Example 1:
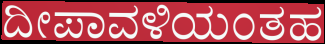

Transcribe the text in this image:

ದೀಪಾವಳಿಯಂತಹ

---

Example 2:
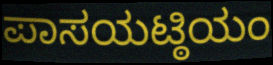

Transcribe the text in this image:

ಪಾಸಯಟ್ಠಿಯಂ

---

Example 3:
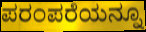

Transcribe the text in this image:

ಪರಂಪರೆಯನ್ನೂ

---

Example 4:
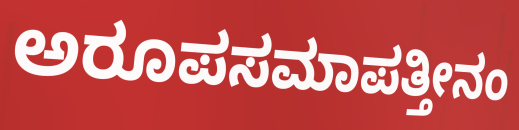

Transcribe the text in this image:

ಅರೂಪಸಮಾಪತ್ತೀನಂ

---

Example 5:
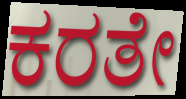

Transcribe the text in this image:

ಕರತೇ